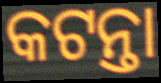
କଟନ୍ତା